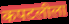
कपटलीला